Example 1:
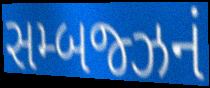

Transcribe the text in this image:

સમ્બજ્ઝનં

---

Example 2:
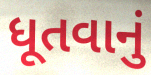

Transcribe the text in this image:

ધૂતવાનું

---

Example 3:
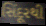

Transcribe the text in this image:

સિંદૂરથી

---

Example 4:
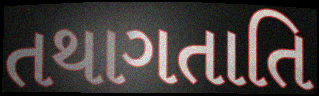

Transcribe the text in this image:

તથાગતાતિ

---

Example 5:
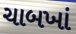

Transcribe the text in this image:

ચાબખાં